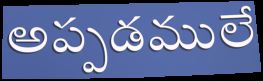
అప్పడములే